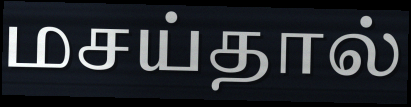
மசய்தால்